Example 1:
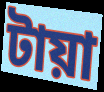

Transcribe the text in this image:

টায়া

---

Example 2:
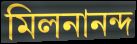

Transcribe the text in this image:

মিলনানন্দ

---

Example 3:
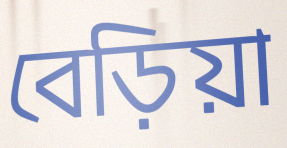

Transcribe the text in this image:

বেড়িয়া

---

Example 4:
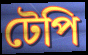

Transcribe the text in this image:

টেপি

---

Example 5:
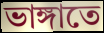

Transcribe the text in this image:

ভাঙ্গাতে